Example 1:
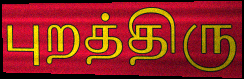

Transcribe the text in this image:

புறத்திரு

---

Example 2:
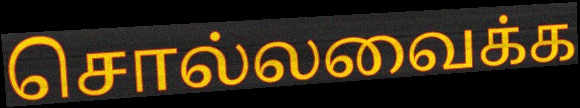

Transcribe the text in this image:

சொல்லவைக்க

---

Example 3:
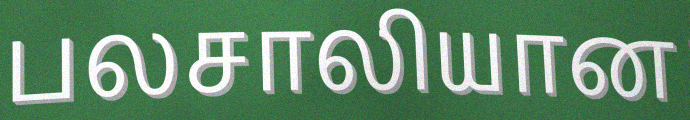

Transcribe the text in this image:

பலசாலியான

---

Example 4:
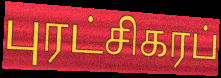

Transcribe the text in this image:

புரட்சிகரப்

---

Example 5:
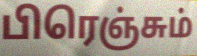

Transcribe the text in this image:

பிரெஞ்சும்